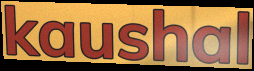
kaushal